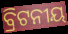
ବ୍ରିଟନୀୟ